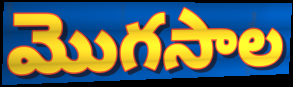
మొగసాల